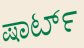
ಷಾರ್ಟ್